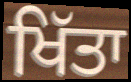
ਖਿੱਤਾ